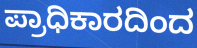
ಪ್ರಾಧಿಕಾರದಿಂದ